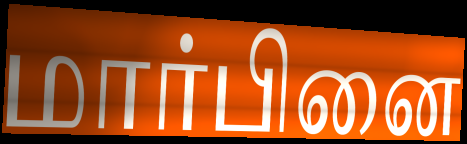
மார்பினை